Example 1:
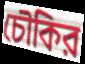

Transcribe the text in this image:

চৌকির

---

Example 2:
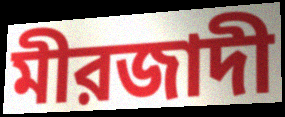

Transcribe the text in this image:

মীরজাদী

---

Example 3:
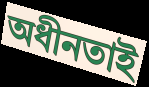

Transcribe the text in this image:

অধীনতাই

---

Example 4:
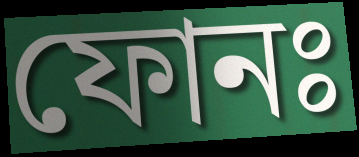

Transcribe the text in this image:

ফোনঃ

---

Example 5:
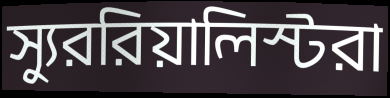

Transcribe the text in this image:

স্যুররিয়ালিস্টরা